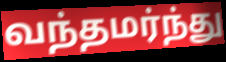
வந்தமர்ந்து